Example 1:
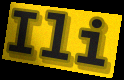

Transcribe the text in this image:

Ili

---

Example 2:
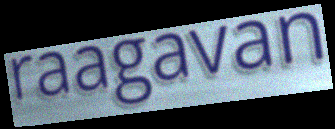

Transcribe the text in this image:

raagavan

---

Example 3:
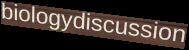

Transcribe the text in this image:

biologydiscussion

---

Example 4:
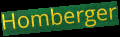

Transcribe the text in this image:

Homberger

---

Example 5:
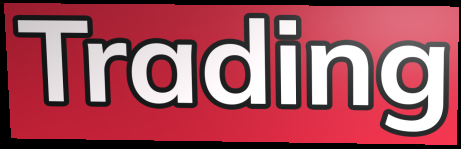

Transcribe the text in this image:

Trading